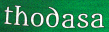
thodasa